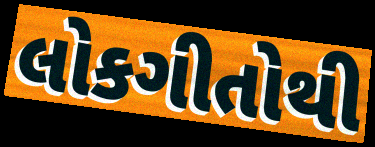
લોકગીતોથી